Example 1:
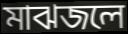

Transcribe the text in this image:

মাঝজলে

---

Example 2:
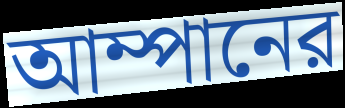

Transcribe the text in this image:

আম্পানের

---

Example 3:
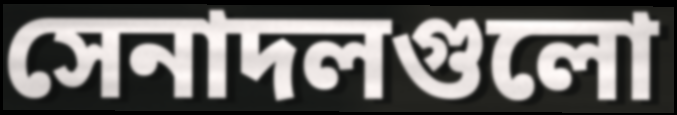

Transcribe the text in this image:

সেনাদলগুলো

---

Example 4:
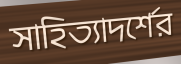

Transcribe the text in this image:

সাহিত্যাদর্শের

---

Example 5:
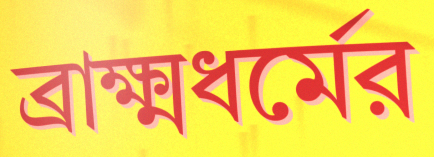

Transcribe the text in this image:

ব্রাক্ষ্মধর্মের